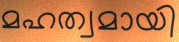
മഹത്വമായി